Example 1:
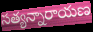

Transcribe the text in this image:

సత్యన్నారాయణ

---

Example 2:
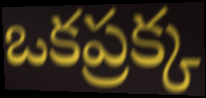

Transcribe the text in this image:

ఒకప్రక్క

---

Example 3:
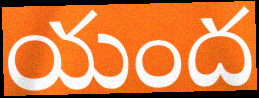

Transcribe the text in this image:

యంద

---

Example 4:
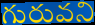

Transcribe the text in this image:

గురువని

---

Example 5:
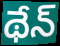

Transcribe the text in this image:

థేన్